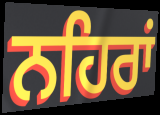
ਨਹਿਰਾਂ